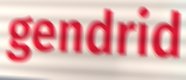
gendrid